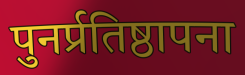
पुनर्प्रतिष्ठापना